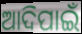
ଆଦିପାଇଁ